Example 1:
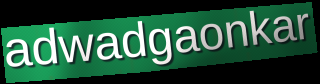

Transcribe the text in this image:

adwadgaonkar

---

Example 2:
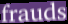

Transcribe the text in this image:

frauds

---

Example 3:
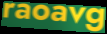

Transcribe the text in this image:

raoavg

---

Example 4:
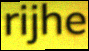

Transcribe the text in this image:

rijhe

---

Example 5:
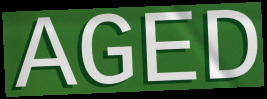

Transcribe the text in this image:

AGED